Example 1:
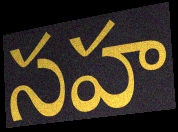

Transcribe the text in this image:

సహ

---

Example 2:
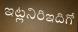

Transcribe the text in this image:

ఇట్లనిరిఇదిగో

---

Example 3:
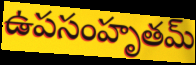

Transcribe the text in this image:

ఉపసంహృతమ్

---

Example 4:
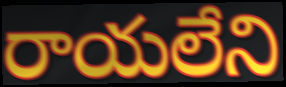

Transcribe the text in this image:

రాయలేని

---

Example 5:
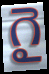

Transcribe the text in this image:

గై